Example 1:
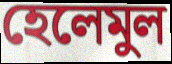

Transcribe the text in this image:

হেলেমুল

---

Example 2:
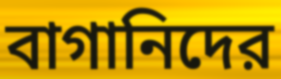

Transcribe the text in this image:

বাগানিদের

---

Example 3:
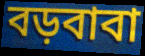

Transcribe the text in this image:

বড়বাবা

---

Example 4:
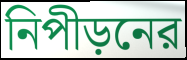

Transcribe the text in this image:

নিপীড়নের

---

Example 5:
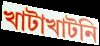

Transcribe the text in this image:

খাটাখাটনি